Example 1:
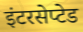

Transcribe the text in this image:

इंटरसेप्टेड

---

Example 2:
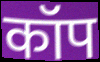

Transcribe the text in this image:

कॉप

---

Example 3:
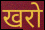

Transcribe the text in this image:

खरो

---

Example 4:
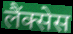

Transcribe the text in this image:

लैंक्‍सेस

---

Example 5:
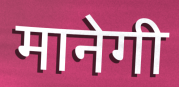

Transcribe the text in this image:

मानेगी